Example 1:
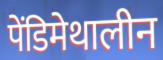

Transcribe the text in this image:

पेंडिमेथालीन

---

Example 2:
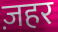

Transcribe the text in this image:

ज़हर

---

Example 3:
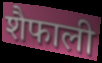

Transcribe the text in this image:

शैफाली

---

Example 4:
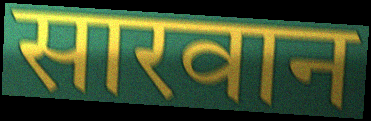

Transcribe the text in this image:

सारवान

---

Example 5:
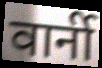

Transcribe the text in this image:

वार्नी